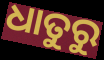
ଧାତୁରୁ